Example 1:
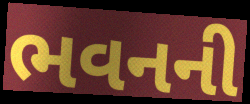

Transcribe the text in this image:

ભવનની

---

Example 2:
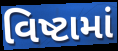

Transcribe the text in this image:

વિષ્ટામાં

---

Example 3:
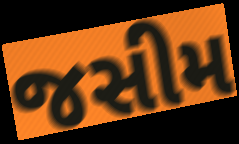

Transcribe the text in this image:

જસીમ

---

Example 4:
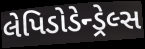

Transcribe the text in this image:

લેપિડોડેન્ડ્રેલ્સ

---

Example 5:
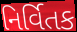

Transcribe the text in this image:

નિર્વિતક